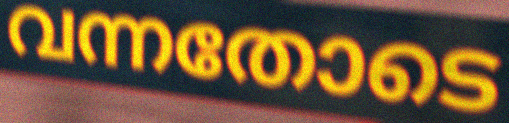
വന്നതോടെ